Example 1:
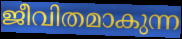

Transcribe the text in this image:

ജീവിതമാകുന്ന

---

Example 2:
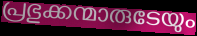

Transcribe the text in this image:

പ്രഭുക്കന്മാരുടേയും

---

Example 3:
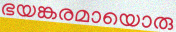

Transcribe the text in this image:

ഭയങ്കരമായൊരു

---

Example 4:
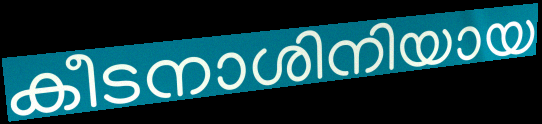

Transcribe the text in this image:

കീടനാശിനിയായ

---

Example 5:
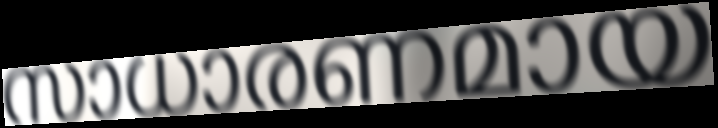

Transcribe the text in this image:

സാധാരണമായ